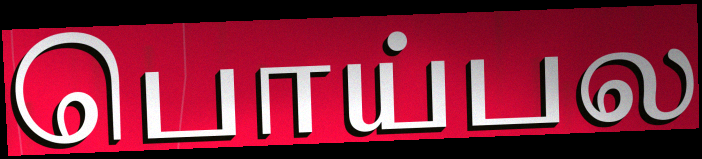
பொய்பல